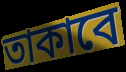
তাকাবে